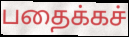
பதைக்கச்